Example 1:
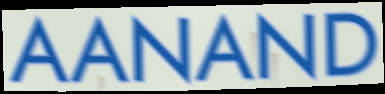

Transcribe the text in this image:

AANAND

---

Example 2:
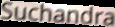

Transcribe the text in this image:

Suchandra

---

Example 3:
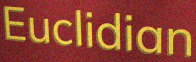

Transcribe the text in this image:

Euclidian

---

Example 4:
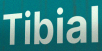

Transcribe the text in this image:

Tibial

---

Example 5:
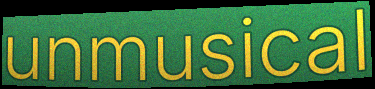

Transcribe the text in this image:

unmusical